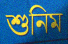
শুনিম